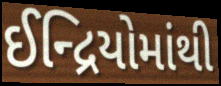
ઈન્દ્રિયોમાંથી